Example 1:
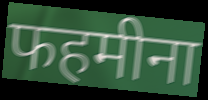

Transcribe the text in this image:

फहमीना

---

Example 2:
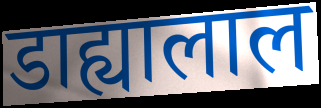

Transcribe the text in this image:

डाह्यालाल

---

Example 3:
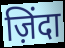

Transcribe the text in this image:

ज़िंदा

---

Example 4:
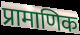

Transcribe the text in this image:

प्रामाणिक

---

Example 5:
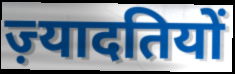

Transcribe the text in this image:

ज़्यादतियों